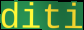
diti